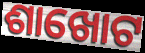
ଶାଖୋଟ